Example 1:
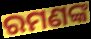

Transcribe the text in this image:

ରମଣଙ୍କ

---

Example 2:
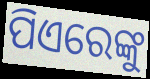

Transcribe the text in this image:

ପିଏରେଙ୍କୁ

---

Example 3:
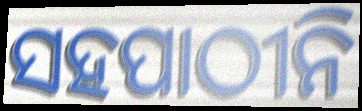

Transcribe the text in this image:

ସହପାଠୀନି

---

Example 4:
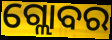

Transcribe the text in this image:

ଗ୍ଲୋବର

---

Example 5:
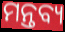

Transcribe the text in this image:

ମନ୍ତବ୍ଯ